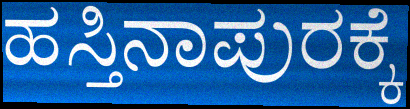
ಹಸ್ತಿನಾಪುರಕ್ಕೆ